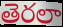
తెరలా